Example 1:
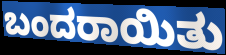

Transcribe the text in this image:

ಬಂದರಾಯಿತು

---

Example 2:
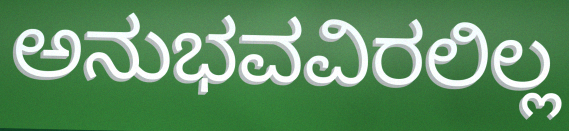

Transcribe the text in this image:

ಅನುಭವವಿರಲಿಲ್ಲ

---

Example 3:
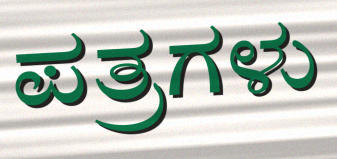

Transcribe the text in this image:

ಪತ್ರಗಳು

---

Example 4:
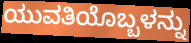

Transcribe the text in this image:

ಯುವತಿಯೊಬ್ಬಳನ್ನು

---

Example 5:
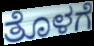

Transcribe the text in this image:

ತೊಳಗೆ